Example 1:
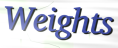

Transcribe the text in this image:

Weights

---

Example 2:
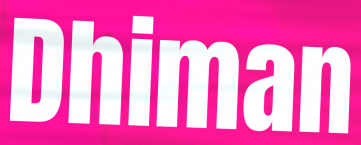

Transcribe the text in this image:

Dhiman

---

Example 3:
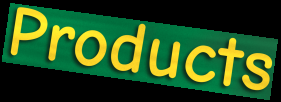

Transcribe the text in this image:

Products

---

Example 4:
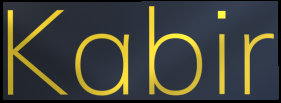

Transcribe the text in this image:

Kabir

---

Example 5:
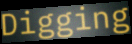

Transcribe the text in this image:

Digging